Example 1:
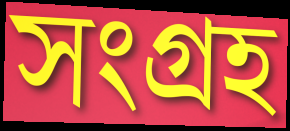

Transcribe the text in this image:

সংগ্রহ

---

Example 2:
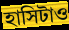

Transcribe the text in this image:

হাসিটাও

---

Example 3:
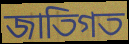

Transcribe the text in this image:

জাতিগত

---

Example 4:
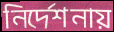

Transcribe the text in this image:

নির্দেশনায়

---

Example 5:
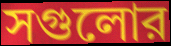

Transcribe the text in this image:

সগুলোর